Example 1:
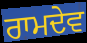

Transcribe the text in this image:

ਰਾਮਦੇਵ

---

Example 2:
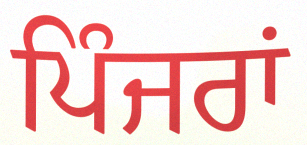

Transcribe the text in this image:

ਪਿੰਜਰਾਂ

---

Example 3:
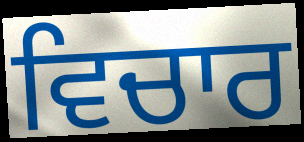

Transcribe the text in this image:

ਵਿਚਾਰ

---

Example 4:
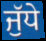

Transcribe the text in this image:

ਜੁੱਧੇ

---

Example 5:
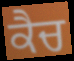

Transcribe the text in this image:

ਕੈਚ